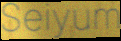
Seiyum